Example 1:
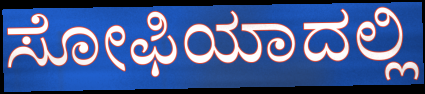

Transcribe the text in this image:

ಸೋಫಿಯಾದಲ್ಲಿ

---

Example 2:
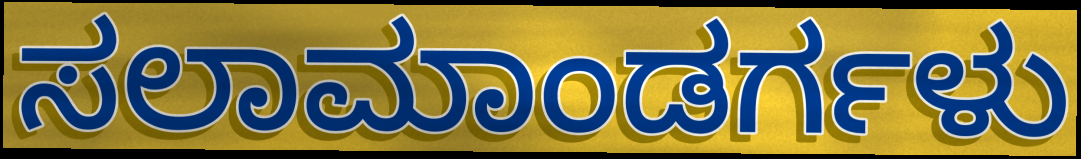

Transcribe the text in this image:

ಸಲಾಮಾಂಡರ್ಗಳು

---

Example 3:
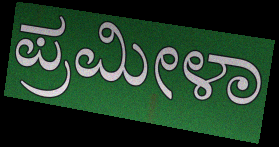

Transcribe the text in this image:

ಪ್ರಮೀಳಾ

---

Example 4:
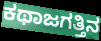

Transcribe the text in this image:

ಕಥಾಜಗತ್ತಿನ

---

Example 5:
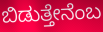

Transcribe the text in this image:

ಬಿಡುತ್ತೇನೆಂಬ